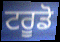
ਟਰੂਡੋ